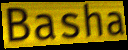
Basha